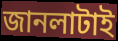
জানলাটাই